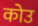
कोउ